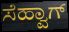
ಸೆಹ್ವಾಗ್